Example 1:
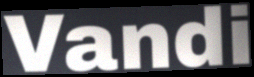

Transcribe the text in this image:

Vandi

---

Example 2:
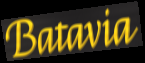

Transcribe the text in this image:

Batavia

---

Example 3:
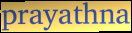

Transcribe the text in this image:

prayathna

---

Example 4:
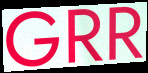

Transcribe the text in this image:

GRR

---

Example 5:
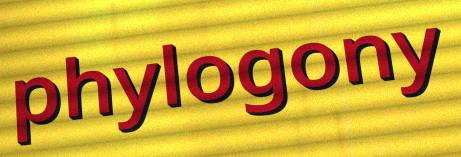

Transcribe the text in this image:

phylogony